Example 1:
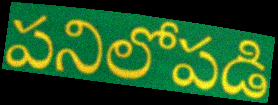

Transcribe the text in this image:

పనిలోపడి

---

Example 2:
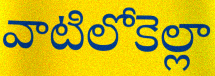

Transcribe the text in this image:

వాటిలోకెల్లా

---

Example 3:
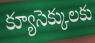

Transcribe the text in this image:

క్యూసెక్కులకు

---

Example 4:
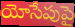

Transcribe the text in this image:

యోసేపుపై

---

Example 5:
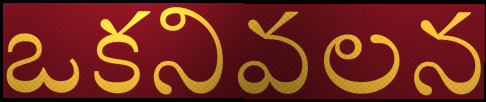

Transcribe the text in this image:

ఒకనివలన